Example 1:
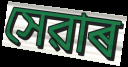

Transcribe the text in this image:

সেৱাৰ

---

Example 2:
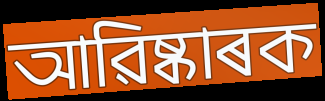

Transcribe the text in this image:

আৱিষ্কাৰক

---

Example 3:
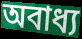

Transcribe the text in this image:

অবাধ্য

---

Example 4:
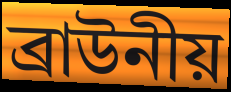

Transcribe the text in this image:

ব্ৰাউনীয়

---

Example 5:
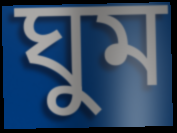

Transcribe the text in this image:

ঘুম